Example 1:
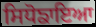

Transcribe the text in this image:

ਸਿਧੋਙਾਇਆ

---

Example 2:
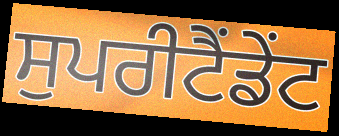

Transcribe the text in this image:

ਸੁਪਰੀਟੈਂਡੇਂਟ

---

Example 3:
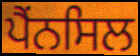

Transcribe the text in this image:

ਪੈਂਨਸਿਲ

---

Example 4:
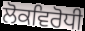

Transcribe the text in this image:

ਲੋਕਵਿਰੋਧੀ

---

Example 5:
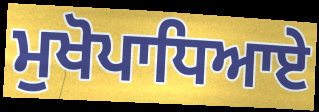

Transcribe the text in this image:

ਮੁਖੋਪਾਧਿਆਏ